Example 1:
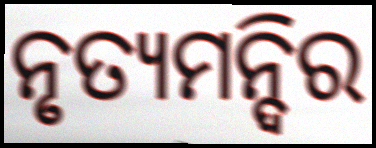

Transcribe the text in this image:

ନୃତ୍ୟମନ୍ଦିର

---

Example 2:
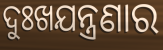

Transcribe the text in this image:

ଦୁଃଖଯନ୍ତ୍ରଣାର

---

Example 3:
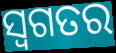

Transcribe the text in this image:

ସ୍ୱଗତର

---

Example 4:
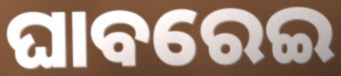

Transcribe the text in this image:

ଘାବରେଇ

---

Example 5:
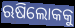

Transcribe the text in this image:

ଋଷିଲୋକକୁ